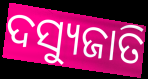
ଦସ୍ୟୁଜାତି